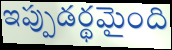
ఇప్పుడర్థమైంది